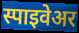
स्पाइवेअर